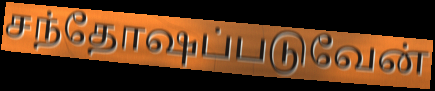
சந்தோஷப்படுவேன்